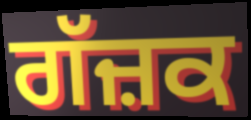
ਗੱਜ਼ਕ